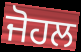
ਜੋਹਲ